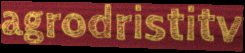
agrodristitv